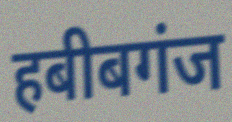
हबीबगंज